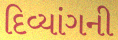
દિવ્યાંગની